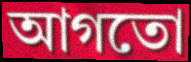
আগতো